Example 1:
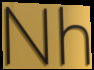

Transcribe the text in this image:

Nh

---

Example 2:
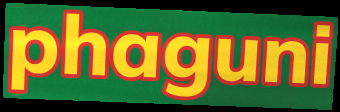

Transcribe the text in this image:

phaguni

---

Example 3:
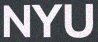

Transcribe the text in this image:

NYU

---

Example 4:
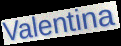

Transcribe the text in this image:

Valentina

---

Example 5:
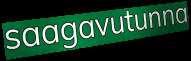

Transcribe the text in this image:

saagavutunna